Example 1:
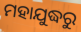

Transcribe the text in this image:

ମହାଯୁଦ୍ଧରୁ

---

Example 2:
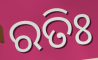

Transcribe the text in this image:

ରତିଃ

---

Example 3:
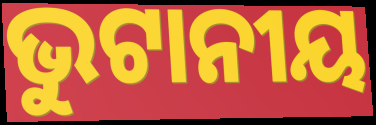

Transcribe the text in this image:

ଭୁଟାନୀୟ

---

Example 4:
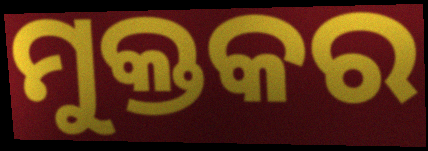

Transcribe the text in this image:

ମୁକ୍ତକର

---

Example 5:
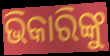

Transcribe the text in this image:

ଭିକାରିଙ୍କୁ